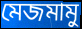
মেজমামু